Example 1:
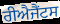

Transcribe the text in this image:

ਰੀਐਜੈਂਟਸ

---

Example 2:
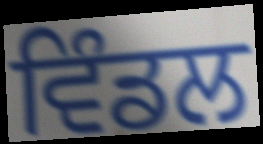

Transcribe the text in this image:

ਵਿੰਡਲ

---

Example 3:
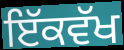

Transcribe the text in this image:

ਇੱਕਵੱਖ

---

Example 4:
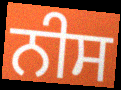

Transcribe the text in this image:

ਨੀਸ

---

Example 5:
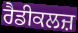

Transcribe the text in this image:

ਰੈਡੀਕਲਜ਼